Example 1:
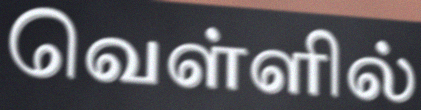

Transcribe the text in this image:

வெள்ளில்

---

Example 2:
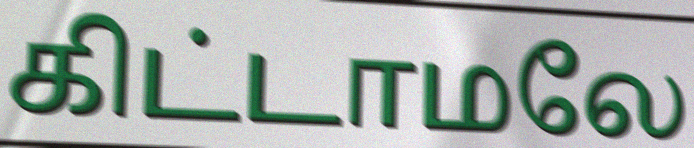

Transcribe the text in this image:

கிட்டாமலே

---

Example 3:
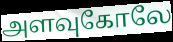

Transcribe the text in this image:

அளவுகோலே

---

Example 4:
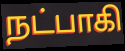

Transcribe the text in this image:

நட்பாகி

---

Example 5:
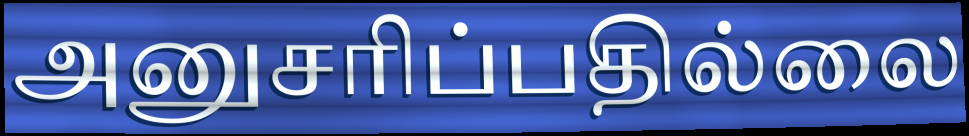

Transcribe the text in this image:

அனுசரிப்பதில்லை